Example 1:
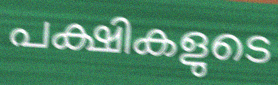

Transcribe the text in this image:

പക്ഷികളുടെ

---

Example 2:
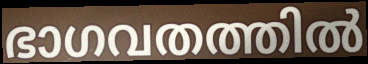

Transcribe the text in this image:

ഭാഗവതത്തിൽ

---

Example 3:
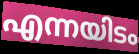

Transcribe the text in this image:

എന്നയിടം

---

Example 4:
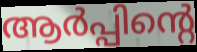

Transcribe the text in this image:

ആർപ്പിന്റെ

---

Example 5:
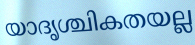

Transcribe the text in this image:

യാദൃശ്ചികതയല്ല